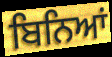
ਬਿਨਿਆਂ